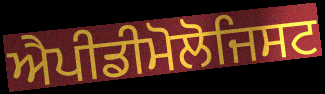
ਐਪੀਡੀਮੋਲੋਜਿਸਟ